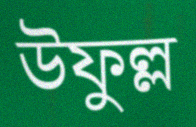
উফুল্ল